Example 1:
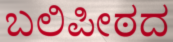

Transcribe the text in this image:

ಬಲಿಪೀಠದ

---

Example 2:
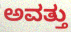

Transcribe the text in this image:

ಅವತ್ತು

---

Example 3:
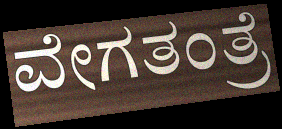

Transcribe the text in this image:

ವೇಗತಂತ್ರೆ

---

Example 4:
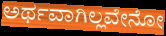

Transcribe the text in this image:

ಅರ್ಥವಾಗಿಲ್ಲವೇನೋ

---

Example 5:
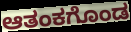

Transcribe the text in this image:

ಆತಂಕಗೊಂಡ